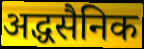
अद्धसैनिक